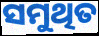
ସମୁଥିତ